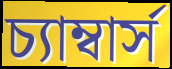
চ্যাম্বার্স